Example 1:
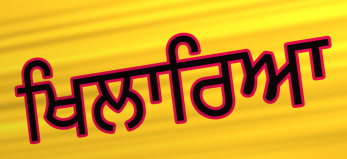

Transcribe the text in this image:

ਖਿਲਾਰਿਆ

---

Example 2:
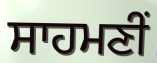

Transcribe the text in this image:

ਸਾਹਮਣੀਂ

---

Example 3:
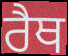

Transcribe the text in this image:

ਰੈਥ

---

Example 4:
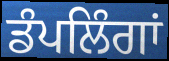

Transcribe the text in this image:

ਡੰਪਲਿੰਗਾਂ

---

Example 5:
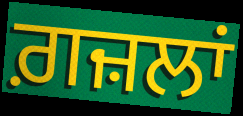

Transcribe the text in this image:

ਗ਼ਜ਼ਲਾਂ